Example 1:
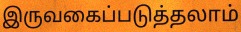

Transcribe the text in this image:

இருவகைப்படுத்தலாம்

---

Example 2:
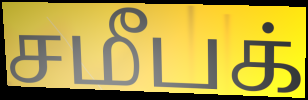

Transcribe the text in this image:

சமீபக்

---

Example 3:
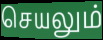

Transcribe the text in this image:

செயலும்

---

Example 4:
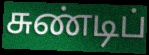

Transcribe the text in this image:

சுண்டிப்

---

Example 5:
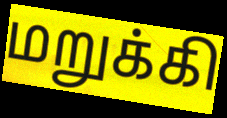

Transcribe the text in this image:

மறுக்கி